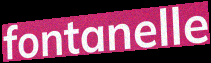
fontanelle